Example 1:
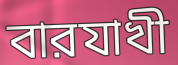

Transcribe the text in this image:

বারযাখী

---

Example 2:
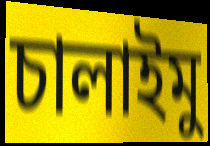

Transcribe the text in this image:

চালাইমু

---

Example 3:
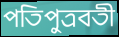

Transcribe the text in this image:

পতিপুত্রবতী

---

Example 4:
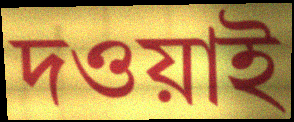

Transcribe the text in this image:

দওয়াই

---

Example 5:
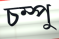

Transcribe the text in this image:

চম্পু